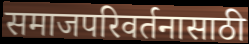
समाजपरिवर्तनासाठी